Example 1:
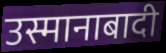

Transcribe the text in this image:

उस्मानाबादी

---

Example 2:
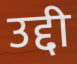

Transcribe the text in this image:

उद्दी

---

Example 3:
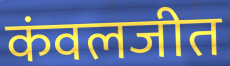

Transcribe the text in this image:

कंवलजीत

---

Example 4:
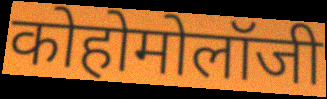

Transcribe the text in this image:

कोहोमोलॉजी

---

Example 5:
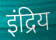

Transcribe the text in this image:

इंद्रिय